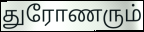
துரோணரும்